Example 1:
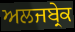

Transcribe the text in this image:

ਅਲਜਬ੍ਰੇਕ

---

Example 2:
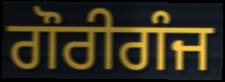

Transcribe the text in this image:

ਗੌਰੀਗੰਜ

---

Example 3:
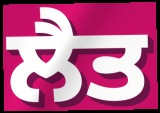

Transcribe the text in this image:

ਲੈਤ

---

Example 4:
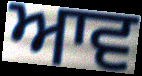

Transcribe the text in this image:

ਆਵ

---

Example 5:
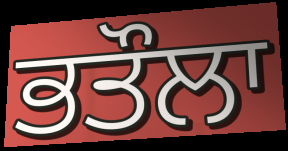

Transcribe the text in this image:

ਭਤੌਲਾ